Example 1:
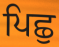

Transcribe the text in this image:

ਪਿਛੁ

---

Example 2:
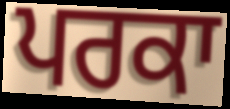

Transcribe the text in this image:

ਪਰਕਾ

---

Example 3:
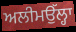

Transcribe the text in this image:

ਅਲੀਮਉੱਲ੍ਹਾ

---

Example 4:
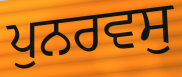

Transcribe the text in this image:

ਪੁਨਰਵਸੁ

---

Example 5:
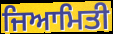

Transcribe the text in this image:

ਜਿਆਮਿਤੀ